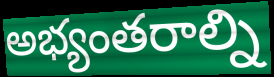
అభ్యంతరాల్ని